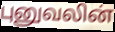
புனுவலின்